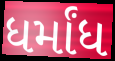
ધર્માંધ